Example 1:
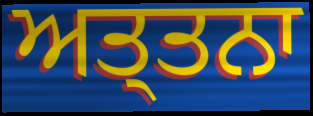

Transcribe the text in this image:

ਅਤ੍ਤਨਾ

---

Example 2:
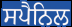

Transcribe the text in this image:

ਸਪੈਨਿਲ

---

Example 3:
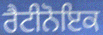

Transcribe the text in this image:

ਰੈਟੀਨੋਇਕ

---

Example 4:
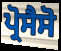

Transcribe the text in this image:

ਪ੍ਰੋਸੈਸੋ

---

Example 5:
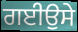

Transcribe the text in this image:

ਗਈਉਸੇ